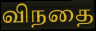
விநதை